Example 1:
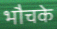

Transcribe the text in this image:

भौचके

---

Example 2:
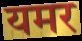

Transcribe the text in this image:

यमर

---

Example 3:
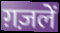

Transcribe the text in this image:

ग़ज़लें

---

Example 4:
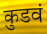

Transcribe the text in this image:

कुडवं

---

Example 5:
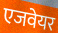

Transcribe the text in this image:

एजवेयर